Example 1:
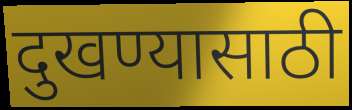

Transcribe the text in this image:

दुखण्यासाठी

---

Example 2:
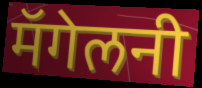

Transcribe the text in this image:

मॅगेलनी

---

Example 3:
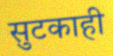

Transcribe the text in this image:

सुटकाही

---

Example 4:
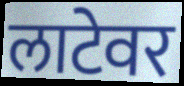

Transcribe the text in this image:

लाटेवर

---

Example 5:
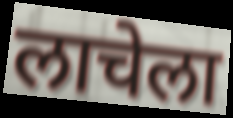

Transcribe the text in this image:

लाचेला